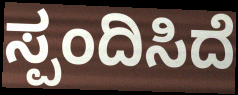
ಸ್ಪಂದಿಸಿದೆ